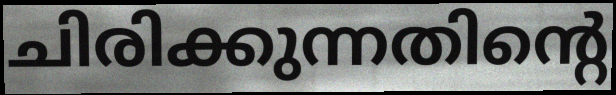
ചിരിക്കുന്നതിന്റെ